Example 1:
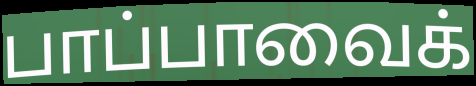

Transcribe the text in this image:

பாப்பாவைக்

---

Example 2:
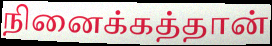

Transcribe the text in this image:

நினைக்கத்தான்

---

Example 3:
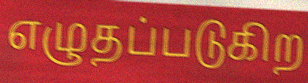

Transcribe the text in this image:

எழுதப்படுகிற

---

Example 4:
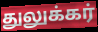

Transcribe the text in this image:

துலுக்கர்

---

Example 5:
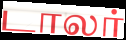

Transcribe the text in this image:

டாலர்